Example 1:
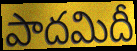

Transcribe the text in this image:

పాదమిదీ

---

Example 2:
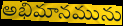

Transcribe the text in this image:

అభిమానమును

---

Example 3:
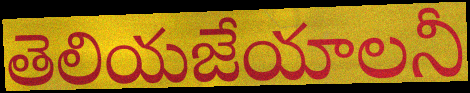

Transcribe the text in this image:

తెలియజేయాలనీ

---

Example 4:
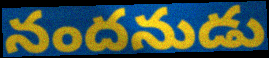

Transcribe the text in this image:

నందనుడు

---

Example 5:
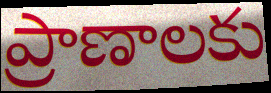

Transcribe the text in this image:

ప్రాణాలకు